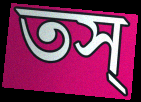
তস্